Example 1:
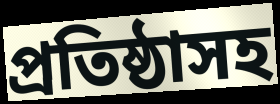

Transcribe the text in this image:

প্রতিষ্ঠাসহ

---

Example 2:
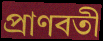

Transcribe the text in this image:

প্রাণবতী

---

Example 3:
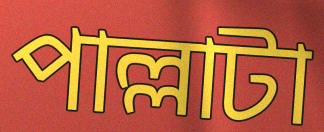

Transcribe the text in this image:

পাল্লাটা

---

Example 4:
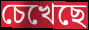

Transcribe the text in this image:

চেখেছে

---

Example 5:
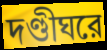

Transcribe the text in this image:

দণ্ডীঘরে